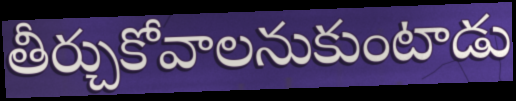
తీర్చుకోవాలనుకుంటాడు